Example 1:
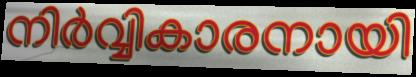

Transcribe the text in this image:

നിർവ്വികാരനായി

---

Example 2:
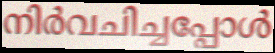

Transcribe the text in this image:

നിർവചിച്ചപ്പോൾ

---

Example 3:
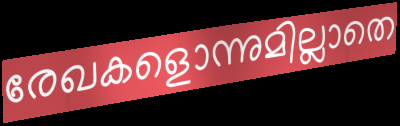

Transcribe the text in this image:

രേഖകളൊന്നുമില്ലാതെ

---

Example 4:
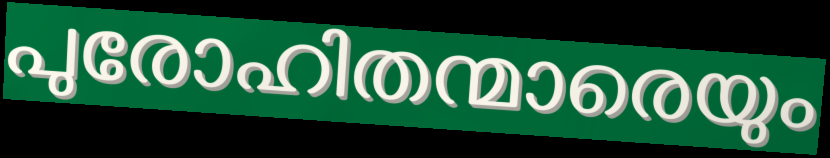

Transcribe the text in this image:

പുരോഹിതന്മാരെയും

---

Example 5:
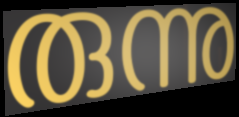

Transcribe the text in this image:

രുന്നു